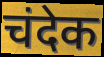
चंदेक